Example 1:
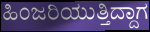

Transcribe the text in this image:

ಹಿಂಜರಿಯುತ್ತಿದ್ದಾಗ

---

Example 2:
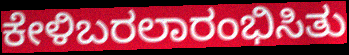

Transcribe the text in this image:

ಕೇಳಿಬರಲಾರಂಭಿಸಿತು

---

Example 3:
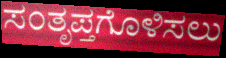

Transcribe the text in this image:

ಸಂತೃಪ್ತಗೊಳಿಸಲು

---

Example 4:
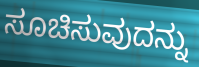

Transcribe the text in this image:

ಸೂಚಿಸುವುದನ್ನು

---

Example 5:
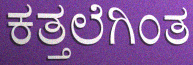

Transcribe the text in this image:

ಕತ್ತಲೆಗಿಂತ